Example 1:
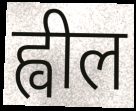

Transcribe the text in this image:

ह्वील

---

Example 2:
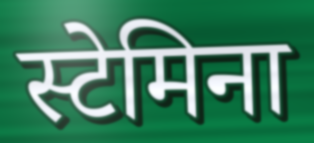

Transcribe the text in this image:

स्टेमिना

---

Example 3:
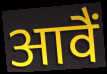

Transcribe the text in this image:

आवैं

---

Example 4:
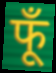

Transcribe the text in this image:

फूँ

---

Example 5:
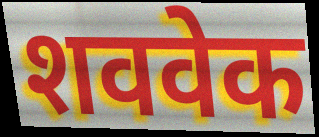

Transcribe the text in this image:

शववेक